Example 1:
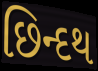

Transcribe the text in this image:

છિન્દથ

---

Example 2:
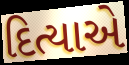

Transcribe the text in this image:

દિત્યાએ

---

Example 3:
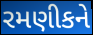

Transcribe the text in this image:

રમણીકને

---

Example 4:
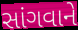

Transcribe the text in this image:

સાંગવાને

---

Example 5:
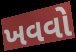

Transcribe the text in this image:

ખવવો